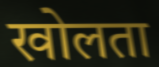
खोलता